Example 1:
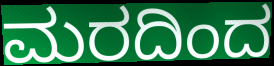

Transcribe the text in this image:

ಮರದಿಂದ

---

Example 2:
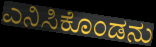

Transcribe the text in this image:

ಎನಿಸಿಕೊಂಡನು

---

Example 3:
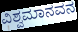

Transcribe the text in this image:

ವಿಶ್ವಮಾನವನ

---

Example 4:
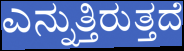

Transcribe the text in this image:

ಎನ್ನುತ್ತಿರುತ್ತದೆ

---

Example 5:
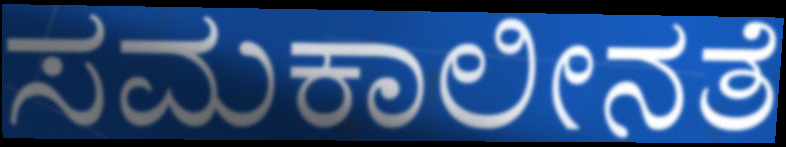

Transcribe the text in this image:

ಸಮಕಾಲೀನತೆ